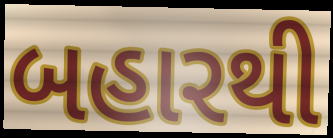
બહારથી